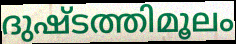
ദുഷ്ടത്തിമൂലം